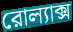
রোল্যাক্স